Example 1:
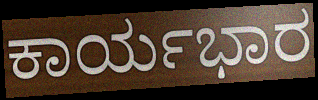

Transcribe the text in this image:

ಕಾರ್ಯಭಾರ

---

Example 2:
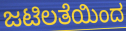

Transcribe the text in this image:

ಜಟಿಲತೆಯಿಂದ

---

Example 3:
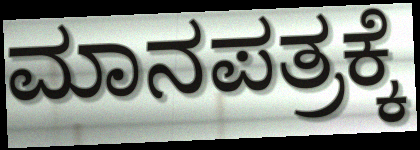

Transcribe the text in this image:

ಮಾನಪತ್ರಕ್ಕೆ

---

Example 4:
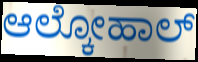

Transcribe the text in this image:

ಆಲ್ಕೋಹಾಲ್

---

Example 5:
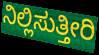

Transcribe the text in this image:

ನಿಲ್ಲಿಸುತ್ತೀರಿ